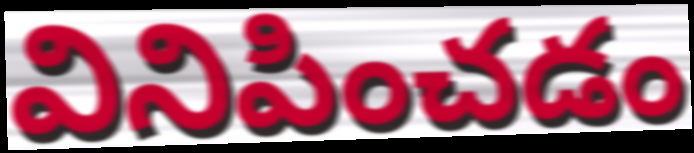
వినిపించడం